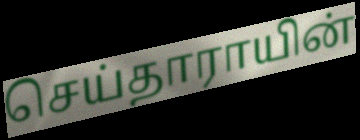
செய்தாராயின்